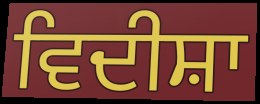
ਵਿਦੀਸ਼ਾ